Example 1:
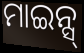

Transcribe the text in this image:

ମାଇନ୍ସ୍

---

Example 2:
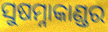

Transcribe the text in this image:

ସୁଷମ୍ନାକାଣ୍ଡର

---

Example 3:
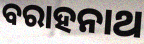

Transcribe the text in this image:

ବରାହନାଥ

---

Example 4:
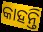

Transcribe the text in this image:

କାହନ୍ତି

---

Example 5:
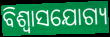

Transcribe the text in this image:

ବିଶ୍ବାସଯୋଗ୍ୟ